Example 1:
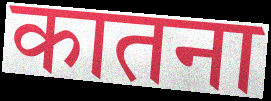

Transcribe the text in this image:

कातना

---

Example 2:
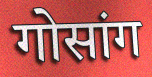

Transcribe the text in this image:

गोसांग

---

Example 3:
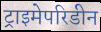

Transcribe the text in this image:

ट्राइमेपरिडीन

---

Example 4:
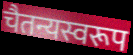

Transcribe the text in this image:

चैतन्यस्वरूप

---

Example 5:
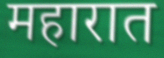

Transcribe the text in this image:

महारात